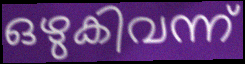
ഒഴുകിവന്ന്